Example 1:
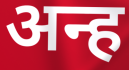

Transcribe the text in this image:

अन्ह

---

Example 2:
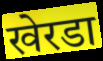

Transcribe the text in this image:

खेरडा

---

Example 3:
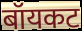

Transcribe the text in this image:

बॉयकट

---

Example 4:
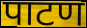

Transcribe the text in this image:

पाटण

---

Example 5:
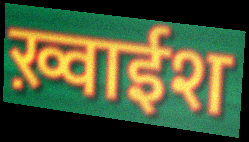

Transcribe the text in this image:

ख़्वाईश